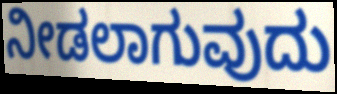
ನೀಡಲಾಗುವುದು